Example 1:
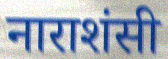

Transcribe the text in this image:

नाराशंसी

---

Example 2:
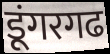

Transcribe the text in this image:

डूंगरगढ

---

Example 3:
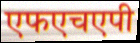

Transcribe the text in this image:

एफएचएपी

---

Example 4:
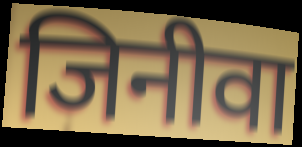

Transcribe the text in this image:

जिनीवा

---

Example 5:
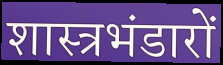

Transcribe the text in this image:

शास्त्रभंडारों